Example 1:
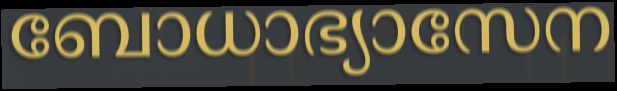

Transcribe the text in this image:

ബോധാഭ്യാസേന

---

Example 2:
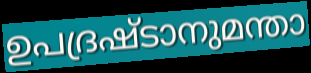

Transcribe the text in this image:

ഉപദ്രഷ്ടാനുമന്താ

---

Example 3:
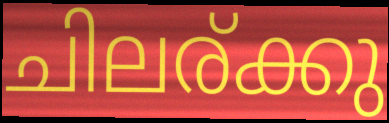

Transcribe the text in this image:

ചിലര്ക്കു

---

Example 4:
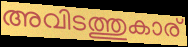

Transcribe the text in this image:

അവിടത്തുകാര്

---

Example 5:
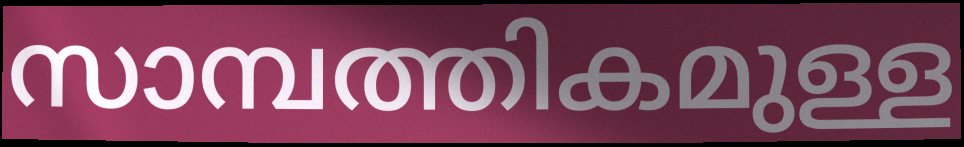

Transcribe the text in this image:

സാമ്പത്തികമുള്ള